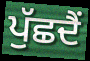
ਪੁੱਛਦੈਂ